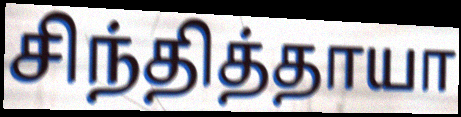
சிந்தித்தாயா